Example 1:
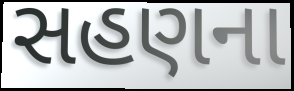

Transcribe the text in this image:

સહણના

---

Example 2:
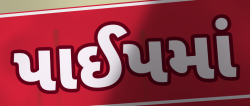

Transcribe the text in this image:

પાઈપમાં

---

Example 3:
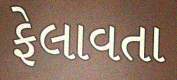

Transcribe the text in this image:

ફેલાવતા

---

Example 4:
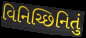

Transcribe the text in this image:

વિનિચ્છિનિતું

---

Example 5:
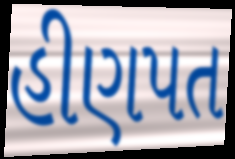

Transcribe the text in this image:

હીણપત